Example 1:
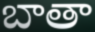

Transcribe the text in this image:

బాతా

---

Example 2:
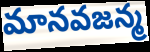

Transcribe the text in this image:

మానవజన్మ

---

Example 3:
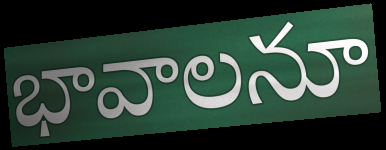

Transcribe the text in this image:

భావాలనూ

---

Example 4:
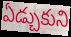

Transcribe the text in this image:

ఏడ్చుకుని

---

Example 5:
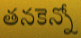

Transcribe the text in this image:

తనకెన్నో